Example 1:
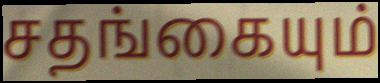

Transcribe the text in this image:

சதங்கையும்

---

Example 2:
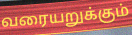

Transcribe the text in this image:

வரையறுக்கும்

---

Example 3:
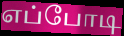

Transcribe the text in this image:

எப்போடி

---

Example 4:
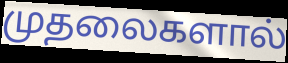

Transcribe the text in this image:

முதலைகளால்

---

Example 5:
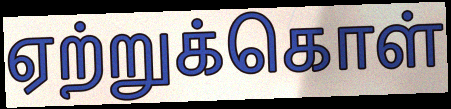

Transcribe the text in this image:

ஏற்றுக்கொள்